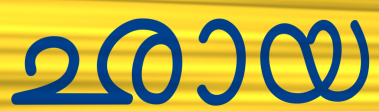
ഛായ